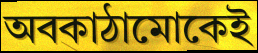
অবকাঠামোকেই